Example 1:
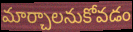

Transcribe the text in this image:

మార్చాలనుకోవడం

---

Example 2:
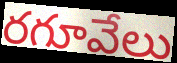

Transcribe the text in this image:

రగూవేలు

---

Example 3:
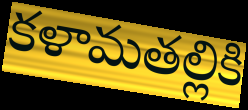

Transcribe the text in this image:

కళామతల్లికి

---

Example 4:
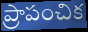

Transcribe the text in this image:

ప్రాపంచిక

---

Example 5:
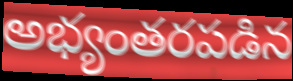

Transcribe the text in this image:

అభ్యంతరపడిన